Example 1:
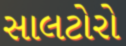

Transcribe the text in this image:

સાલટોરો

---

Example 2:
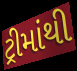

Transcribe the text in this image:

ટ્રીમાંથી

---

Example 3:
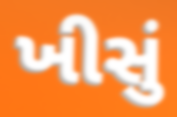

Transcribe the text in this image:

ખીસું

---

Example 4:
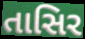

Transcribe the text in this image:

તાસિર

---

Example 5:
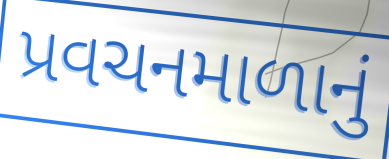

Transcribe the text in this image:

પ્રવચનમાળાનું